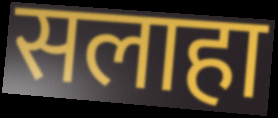
सलाहा